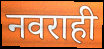
नवराही